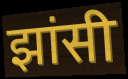
झांसी